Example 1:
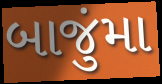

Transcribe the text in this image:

બાજુંમા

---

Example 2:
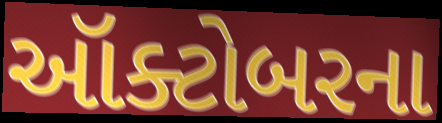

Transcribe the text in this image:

ઑક્ટોબરના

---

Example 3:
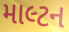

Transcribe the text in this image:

માલ્ટન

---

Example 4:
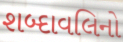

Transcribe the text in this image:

શબ્દાવલિનો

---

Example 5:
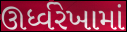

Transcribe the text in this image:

ઊર્ધ્વરેખામાં